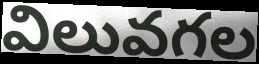
విలువగల